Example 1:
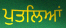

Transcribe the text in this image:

ਪੁਤਲਿਆਂ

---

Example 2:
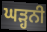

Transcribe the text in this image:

ਘੜ੍ਹਨੀ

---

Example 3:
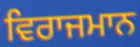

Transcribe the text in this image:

ਵਿਰਾਜਮਾਨ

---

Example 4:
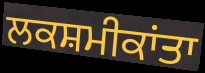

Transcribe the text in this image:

ਲਕਸ਼ਮੀਕਾਂਤਾ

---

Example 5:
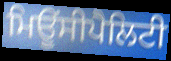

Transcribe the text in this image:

ਮਿਊਂਸੀਪੈਲਿਟੀ